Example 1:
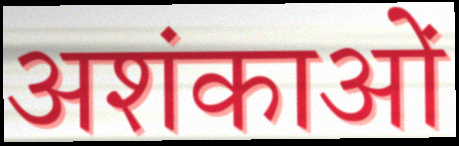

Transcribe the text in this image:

अशंकाओं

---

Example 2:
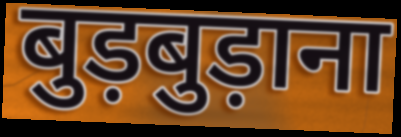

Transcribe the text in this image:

बुड़बुड़ाना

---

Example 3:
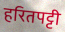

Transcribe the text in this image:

हरितपट्टी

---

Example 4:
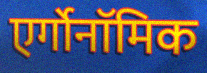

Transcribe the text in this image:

एर्गोनॉमिक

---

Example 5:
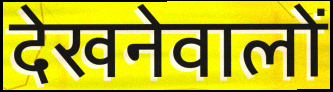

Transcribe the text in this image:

देखनेवालों